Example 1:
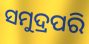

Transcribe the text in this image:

ସମୁଦ୍ରପରି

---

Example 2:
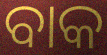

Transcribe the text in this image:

ବାକ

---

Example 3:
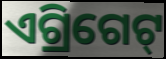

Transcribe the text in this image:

ଏଗ୍ରିଗେଟ୍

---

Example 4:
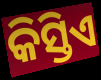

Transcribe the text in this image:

କିସ୍ତିଏ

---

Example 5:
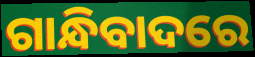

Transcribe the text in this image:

ଗାନ୍ଧିବାଦରେ